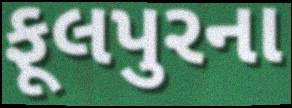
ફૂલપુરના